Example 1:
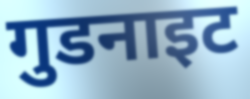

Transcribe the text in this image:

गुडनाइट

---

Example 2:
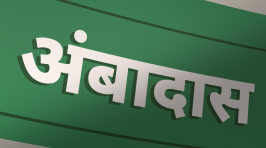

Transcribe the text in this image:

अंबादास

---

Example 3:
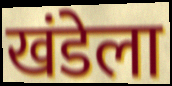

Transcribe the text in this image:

खंडेला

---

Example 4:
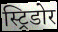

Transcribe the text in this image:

स्ट्रिडोर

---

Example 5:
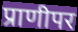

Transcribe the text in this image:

प्राणीपर